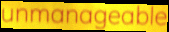
unmanageable